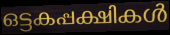
ഒട്ടകപ്പക്ഷികൾ